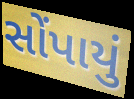
સોંપાયું